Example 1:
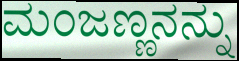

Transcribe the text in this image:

ಮಂಜಣ್ಣನನ್ನು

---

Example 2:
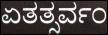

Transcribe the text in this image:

ಏತತ್ಸರ್ವಂ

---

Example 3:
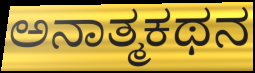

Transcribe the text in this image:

ಅನಾತ್ಮಕಥನ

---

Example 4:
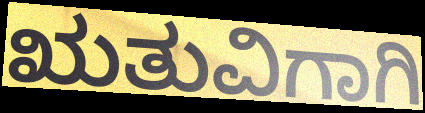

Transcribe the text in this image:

ಋತುವಿಗಾಗಿ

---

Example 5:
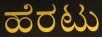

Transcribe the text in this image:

ಹೆರಟು